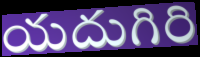
యదుగిరి